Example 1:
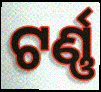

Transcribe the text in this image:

ଟର୍ଣ୍ଣ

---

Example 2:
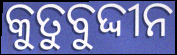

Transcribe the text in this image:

କୁତୁବୁଦ୍ଦୀନ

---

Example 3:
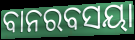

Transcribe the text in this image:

ବାନରବସୟା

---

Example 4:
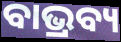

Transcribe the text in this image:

ବାଭ୍ରବ୍ୟ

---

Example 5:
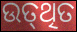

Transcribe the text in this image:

ଉତ୍‌ଥିତ